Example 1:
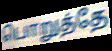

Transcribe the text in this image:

பொறுத்தே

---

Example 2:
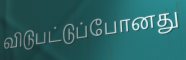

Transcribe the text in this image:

விடுபட்டுப்போனது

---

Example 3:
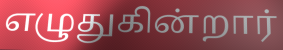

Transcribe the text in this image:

எழுதுகின்றார்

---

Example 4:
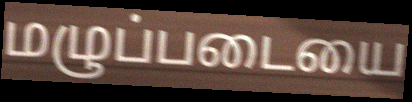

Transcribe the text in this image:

மழுப்படையை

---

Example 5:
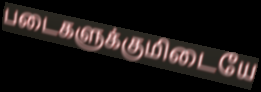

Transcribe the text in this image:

படைகளுக்குமிடையே